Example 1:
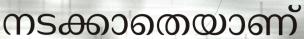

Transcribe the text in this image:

നടക്കാതെയാണ്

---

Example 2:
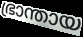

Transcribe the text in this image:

ഭ്രാന്തായ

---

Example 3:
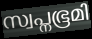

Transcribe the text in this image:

സ്വപ്നഭൂമി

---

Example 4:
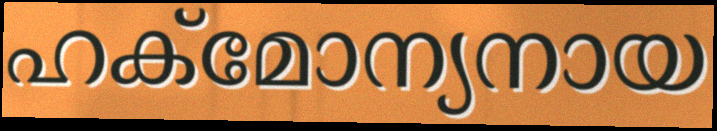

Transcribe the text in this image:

ഹക്മോന്യനായ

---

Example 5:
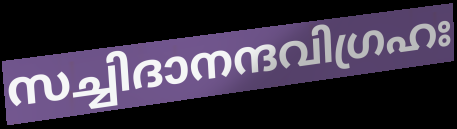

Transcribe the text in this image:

സച്ചിദാനന്ദവിഗ്രഹഃ